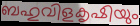
ബഹുവിളകൃഷിയും